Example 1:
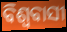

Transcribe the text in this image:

ବିଶ୍ୱବାସୀ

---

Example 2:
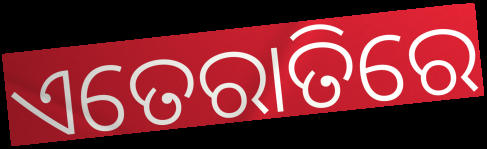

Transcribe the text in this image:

ଏତେରାତିରେ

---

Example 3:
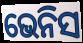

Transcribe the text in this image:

ଭେନିସ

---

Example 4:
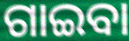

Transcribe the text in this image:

ଗାଇବା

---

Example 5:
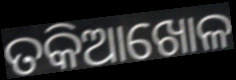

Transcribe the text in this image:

ତକିଆଖୋଳ